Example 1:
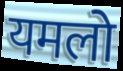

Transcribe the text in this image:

यमलो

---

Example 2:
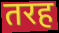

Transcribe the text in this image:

तरह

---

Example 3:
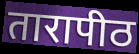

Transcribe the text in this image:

तारापीठ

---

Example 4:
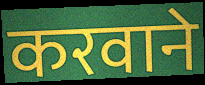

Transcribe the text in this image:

करवाने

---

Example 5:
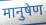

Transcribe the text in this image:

मानुषेण